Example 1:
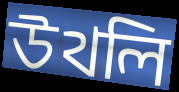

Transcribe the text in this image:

উথলি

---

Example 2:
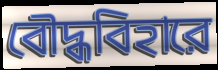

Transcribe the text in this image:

বৌদ্ধবিহারে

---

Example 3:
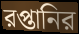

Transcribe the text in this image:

রপ্তানির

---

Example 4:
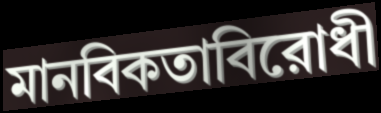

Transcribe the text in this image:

মানবিকতাবিরোধী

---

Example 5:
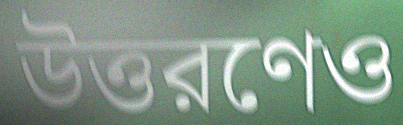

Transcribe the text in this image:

উত্তরণেও